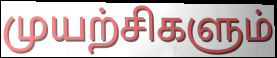
முயற்சிகளும்